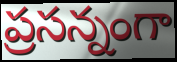
ప్రసన్నంగా